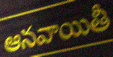
ఆనవాయితీ